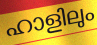
ഹാളിലും